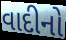
વાદીનો